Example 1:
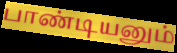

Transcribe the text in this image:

பாண்டியனும்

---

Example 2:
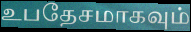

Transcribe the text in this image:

உபதேசமாகவும்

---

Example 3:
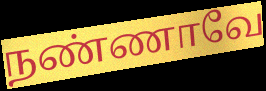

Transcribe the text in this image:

நண்ணாவே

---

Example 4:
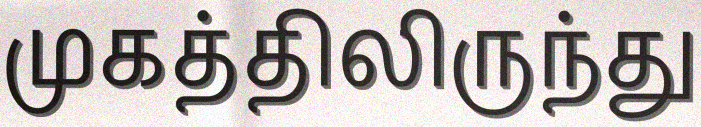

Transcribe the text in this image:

முகத்திலிருந்து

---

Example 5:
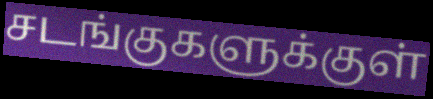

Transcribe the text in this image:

சடங்குகளுக்குள்